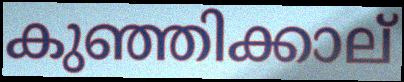
കുഞ്ഞിക്കാല്